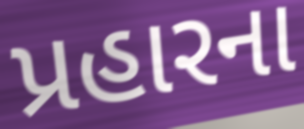
પ્રહારના